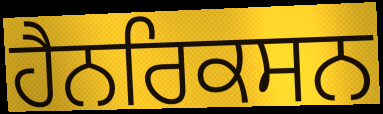
ਹੈਨਰਿਕਸਨ